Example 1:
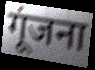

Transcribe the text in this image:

गूंजना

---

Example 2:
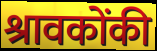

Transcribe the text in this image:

श्रावकोंकी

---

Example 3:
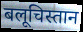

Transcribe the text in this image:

बलूचिस्तान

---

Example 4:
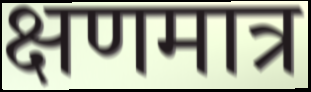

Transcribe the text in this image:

क्षणमात्र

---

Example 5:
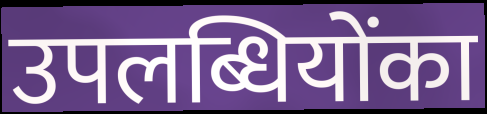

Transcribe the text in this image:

उपलब्धियोंका